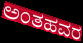
ಅಂತಹವರ